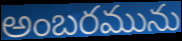
అంబరమును